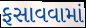
ફસાવવામાં